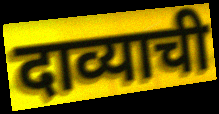
दाव्याची